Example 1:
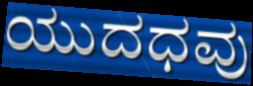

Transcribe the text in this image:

ಯುದಧವು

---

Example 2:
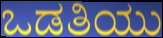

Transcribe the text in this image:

ಒಡತಿಯು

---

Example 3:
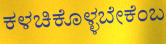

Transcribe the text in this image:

ಕಳಚಿಕೊಳ್ಳಬೇಕೆಂಬ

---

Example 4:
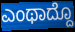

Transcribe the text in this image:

ಎಂಥಾದ್ದೊ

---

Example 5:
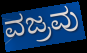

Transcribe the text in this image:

ವಜ್ರವು